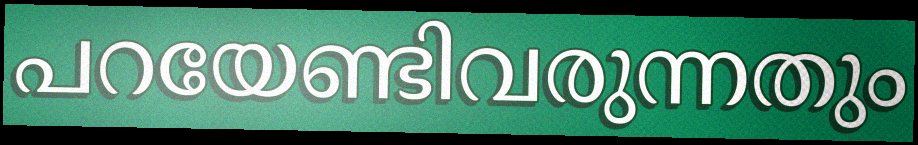
പറയേണ്ടിവരുന്നതും